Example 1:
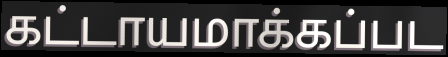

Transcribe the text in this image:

கட்டாயமாக்கப்பட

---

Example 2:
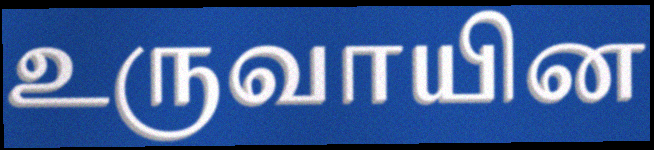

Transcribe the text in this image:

உருவாயின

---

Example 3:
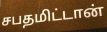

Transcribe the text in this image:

சபதமிட்டான்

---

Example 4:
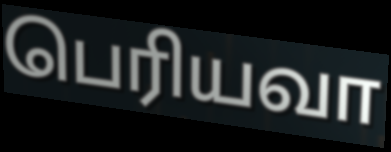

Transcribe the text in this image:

பெரியவா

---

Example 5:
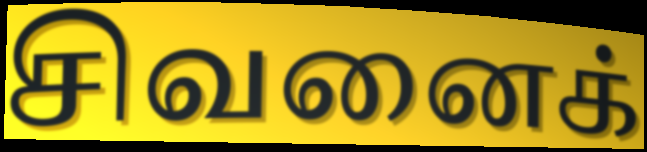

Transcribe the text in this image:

சிவனைக்